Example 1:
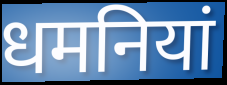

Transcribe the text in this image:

धमनियां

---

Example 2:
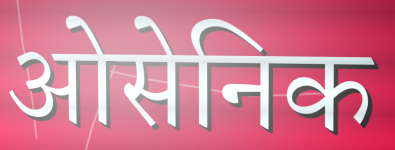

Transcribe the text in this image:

ओसेनिक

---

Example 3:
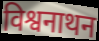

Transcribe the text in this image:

विश्वनाथन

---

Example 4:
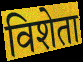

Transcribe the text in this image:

विशेता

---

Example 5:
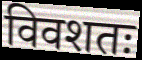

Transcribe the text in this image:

विवशतः